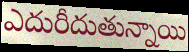
ఎదురీదుతున్నాయి